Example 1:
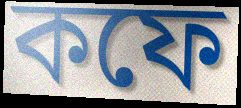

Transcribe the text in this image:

কফে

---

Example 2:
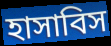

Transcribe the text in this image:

হাসাবিস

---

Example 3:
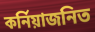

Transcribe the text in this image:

কর্নিয়াজনিত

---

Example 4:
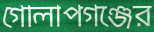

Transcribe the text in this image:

গোলাপগঞ্জের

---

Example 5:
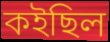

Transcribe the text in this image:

কইছিল